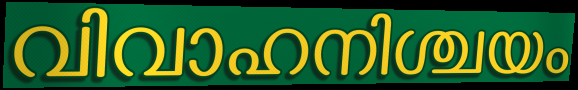
വിവാഹനിശ്ചയം